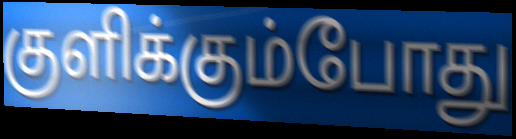
குளிக்கும்போது